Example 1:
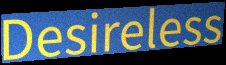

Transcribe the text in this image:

Desireless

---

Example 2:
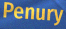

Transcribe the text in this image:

Penury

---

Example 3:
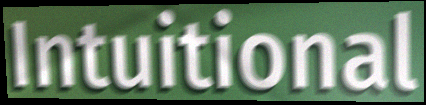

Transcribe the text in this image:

Intuitional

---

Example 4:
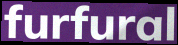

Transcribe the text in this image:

furfural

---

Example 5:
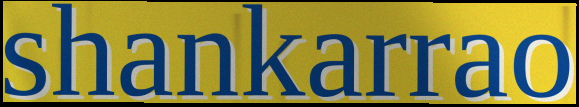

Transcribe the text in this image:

shankarrao